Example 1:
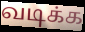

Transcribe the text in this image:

வடிக்க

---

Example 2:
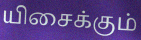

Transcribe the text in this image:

யிசைக்கும்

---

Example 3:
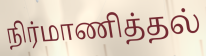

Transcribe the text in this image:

நிர்மாணித்தல்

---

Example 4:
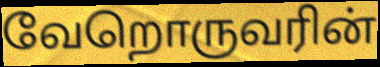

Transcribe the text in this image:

வேறொருவரின்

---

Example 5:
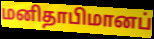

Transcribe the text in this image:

மனிதாபிமானப்